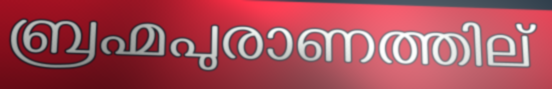
ബ്രഹ്മപുരാണത്തില്